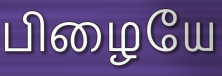
பிழையே